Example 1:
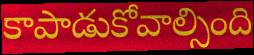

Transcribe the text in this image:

కాపాడుకోవాల్సింది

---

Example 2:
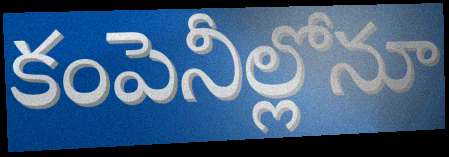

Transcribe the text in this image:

కంపెనీల్లోనూ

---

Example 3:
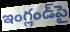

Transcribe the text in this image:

ఇంగ్లండ్‌పై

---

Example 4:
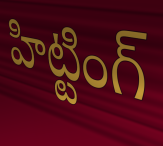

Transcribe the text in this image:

హిట్టింగ్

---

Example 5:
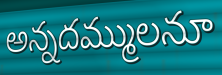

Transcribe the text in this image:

అన్నదమ్ములనూ